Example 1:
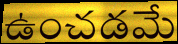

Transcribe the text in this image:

ఉంచడమే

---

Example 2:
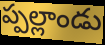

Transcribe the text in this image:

ప్పల్లాండు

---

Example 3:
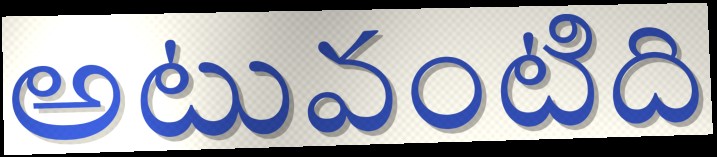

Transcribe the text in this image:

అటువంటిది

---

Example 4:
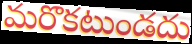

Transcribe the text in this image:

మరొకటుండదు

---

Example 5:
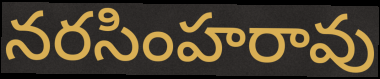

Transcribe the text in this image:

నరసింహరావు